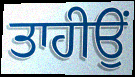
ਤਾਹੀਉਂ